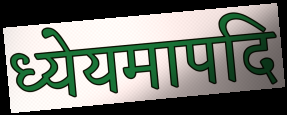
ध्येयमापदि